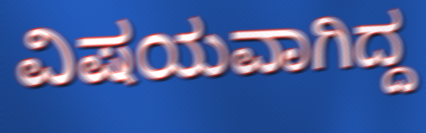
ವಿಷಯವಾಗಿದ್ದ